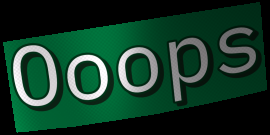
Ooops